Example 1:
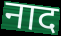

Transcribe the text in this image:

नाद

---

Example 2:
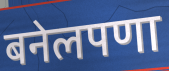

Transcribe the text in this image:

बनेलपणा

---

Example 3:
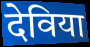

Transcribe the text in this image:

देविया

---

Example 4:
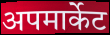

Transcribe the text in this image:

अपमार्केट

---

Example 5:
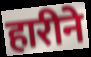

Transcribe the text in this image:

हारीने